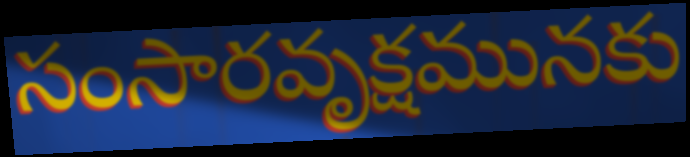
సంసారవృక్షమునకు